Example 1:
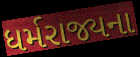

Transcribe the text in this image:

ધર્મરાજ્યના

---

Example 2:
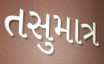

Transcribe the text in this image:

તસુમાત્ર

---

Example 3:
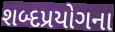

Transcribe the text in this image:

શબ્દપ્રયોગના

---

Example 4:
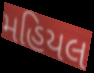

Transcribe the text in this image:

મહિયલ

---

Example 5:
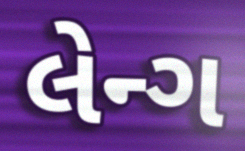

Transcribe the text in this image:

લેન્ગ